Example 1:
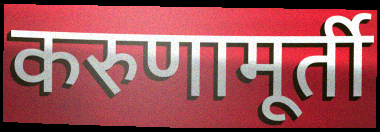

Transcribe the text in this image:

करुणामूर्ती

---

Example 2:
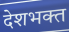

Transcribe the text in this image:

देशभक्त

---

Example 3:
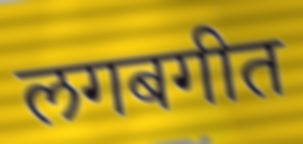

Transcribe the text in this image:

लगबगीत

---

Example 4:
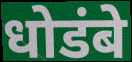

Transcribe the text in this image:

धोडंबे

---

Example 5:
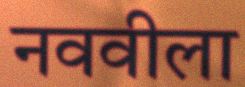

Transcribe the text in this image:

नववीला